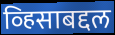
व्हिसाबद्दल